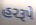
હરરૂપે